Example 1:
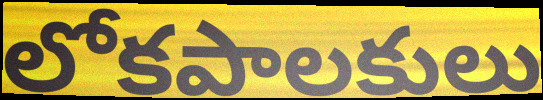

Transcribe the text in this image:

లోకపాలకులు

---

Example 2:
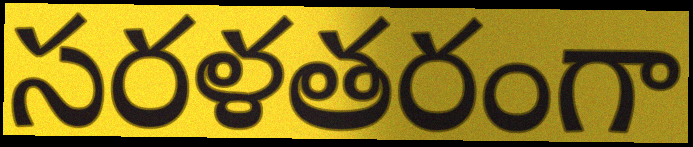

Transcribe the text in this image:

సరళతరంగా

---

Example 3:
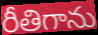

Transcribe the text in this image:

రీతిగాను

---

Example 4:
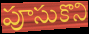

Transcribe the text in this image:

పూసుకొని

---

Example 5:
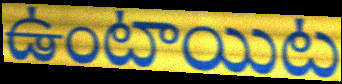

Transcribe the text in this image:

ఉంటాయిట